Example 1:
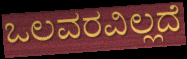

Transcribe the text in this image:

ಒಲವರವಿಲ್ಲದೆ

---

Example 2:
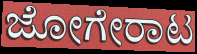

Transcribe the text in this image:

ಜೋಗೇರಾಟ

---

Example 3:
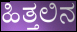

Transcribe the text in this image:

ಹಿತ್ತಲಿನ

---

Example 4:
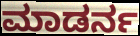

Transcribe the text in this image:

ಮಾಡರ್ನ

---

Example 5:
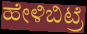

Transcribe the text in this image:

ಹೇಳಿಬಿಟ್ರೆ